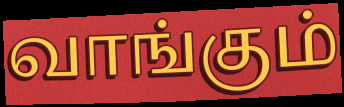
வாங்கும்